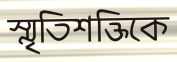
স্মৃতিশক্তিকে